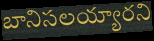
బానిసలయ్యారని